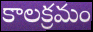
కాలక్రమం